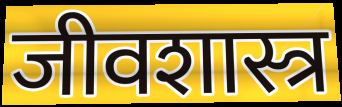
जीवशास्त्र